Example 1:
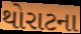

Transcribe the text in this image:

થોરાટના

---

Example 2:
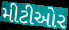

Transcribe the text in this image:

મીટીઓર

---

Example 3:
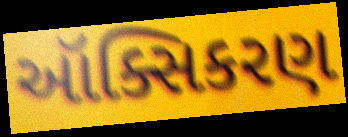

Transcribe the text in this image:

ઑક્સિકરણ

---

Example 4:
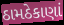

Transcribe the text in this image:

ઠામઠેકાણાં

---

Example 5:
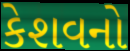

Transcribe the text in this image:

કેશવનો